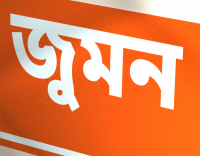
জুমন